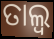
ତାଲ୍ୱ